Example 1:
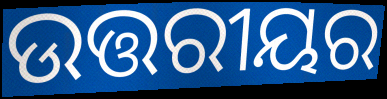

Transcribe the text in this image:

ଉତ୍ତରୀୟର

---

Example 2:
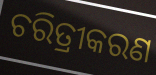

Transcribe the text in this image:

ଚରିତ୍ରୀକରଣ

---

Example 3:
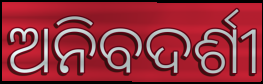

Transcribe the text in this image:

ଅନିବଦର୍ଶୀ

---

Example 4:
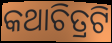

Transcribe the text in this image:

କଥାଚିତ୍ରଟି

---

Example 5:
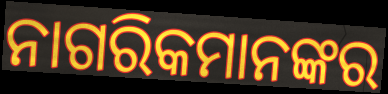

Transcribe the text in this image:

ନାଗରିକମାନଙ୍କର